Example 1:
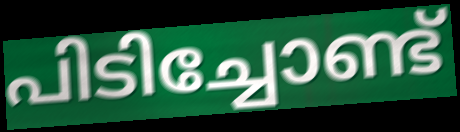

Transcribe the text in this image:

പിടിച്ചോണ്ട്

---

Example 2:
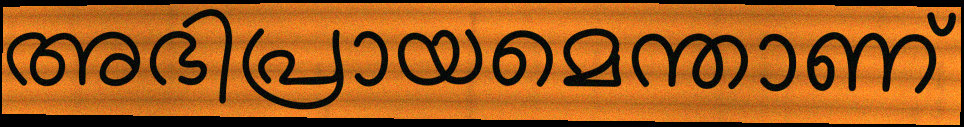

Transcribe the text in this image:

അഭിപ്രായമെന്താണ്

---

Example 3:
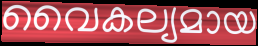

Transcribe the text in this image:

വൈകല്യമായ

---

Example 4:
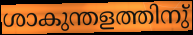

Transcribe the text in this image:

ശാകുന്തളത്തിനു്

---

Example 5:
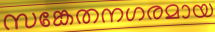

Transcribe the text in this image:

സങ്കേതനഗരമായ